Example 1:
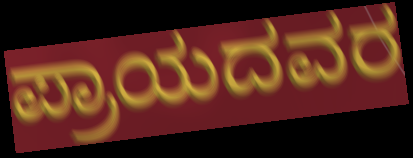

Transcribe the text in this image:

ಪ್ರಾಯದವರ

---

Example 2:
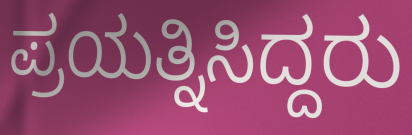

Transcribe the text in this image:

ಪ್ರಯತ್ನಿಸಿದ್ದರು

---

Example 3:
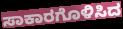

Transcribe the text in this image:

ಸಾಕಾರಗೊಳಿಸಿದ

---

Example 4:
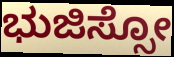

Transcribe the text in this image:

ಭುಜಿಸ್ಸೋ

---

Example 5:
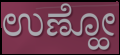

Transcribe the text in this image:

ಉಣ್ಹೋ